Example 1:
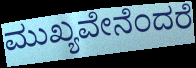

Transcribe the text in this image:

ಮುಖ್ಯವೇನೆಂದರೆ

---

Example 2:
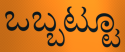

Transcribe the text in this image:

ಒಬ್ಬಟ್ಟೂ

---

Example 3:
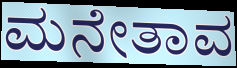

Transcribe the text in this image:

ಮನೇತಾವ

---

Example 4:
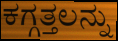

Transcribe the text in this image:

ಕಗ್ಗತ್ತಲನ್ನು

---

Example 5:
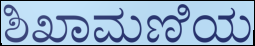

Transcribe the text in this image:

ಶಿಖಾಮಣಿಯ